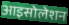
आइसोलेशन